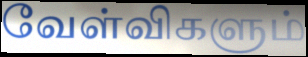
வேள்விகளும்